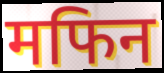
मफिन